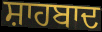
ਸ਼ਾਹਬਾਦ